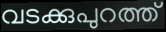
വടക്കുപുറത്ത്